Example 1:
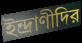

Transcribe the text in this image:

ইন্দ্রাণীদির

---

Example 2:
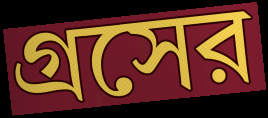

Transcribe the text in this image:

গ্রসের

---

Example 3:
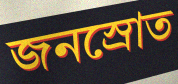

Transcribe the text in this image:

জনস্রোত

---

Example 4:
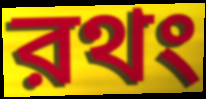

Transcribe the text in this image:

রথং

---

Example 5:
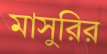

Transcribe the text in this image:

মাসুরির